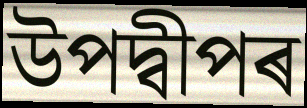
উপদ্বীপৰ